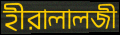
হীরালালজী